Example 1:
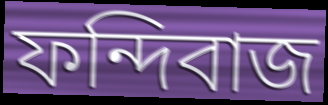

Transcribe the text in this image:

ফন্দিবাজ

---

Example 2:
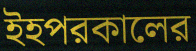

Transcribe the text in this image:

ইহপরকালের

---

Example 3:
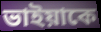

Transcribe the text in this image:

ভাইয়াকে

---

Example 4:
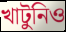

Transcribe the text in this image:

খাটুনিও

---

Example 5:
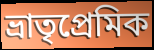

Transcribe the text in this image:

ভ্রাতৃপ্রেমিক